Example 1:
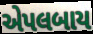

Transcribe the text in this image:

એપલબાય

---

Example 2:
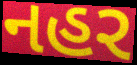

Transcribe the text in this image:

નહર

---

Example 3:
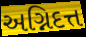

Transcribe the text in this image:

અગ્નિદત્ત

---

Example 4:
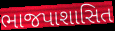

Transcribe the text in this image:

ભાજપાશાસિત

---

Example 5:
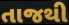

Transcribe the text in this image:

તાજથી